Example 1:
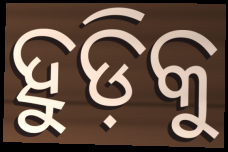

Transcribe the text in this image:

ହୁଡ଼ିକୁ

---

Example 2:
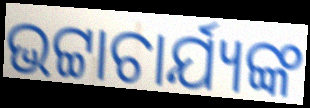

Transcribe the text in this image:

ଭଟ୍ଟାଚାର୍ଯ୍ୟଙ୍କ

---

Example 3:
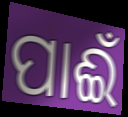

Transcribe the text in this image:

ପାଈଁ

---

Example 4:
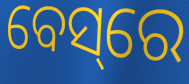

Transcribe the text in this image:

ବେସ୍‌ରେ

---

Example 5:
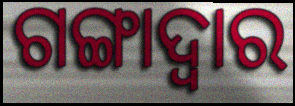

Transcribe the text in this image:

ଗଙ୍ଗାଦ୍ୱାର